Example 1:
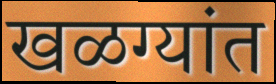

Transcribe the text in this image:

खळग्यांत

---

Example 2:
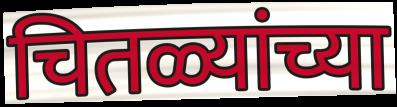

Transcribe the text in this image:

चितळ्यांच्या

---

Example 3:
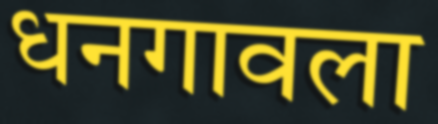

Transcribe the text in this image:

धनगावला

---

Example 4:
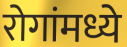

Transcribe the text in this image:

रोगांमध्ये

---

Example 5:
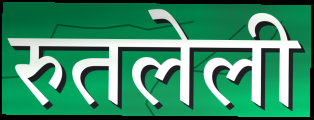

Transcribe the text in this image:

रुतलेली